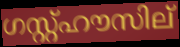
ഗസ്റ്റ്ഹൗസില്